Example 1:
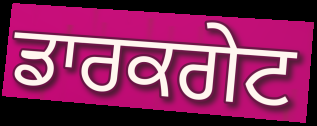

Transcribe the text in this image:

ਡਾਰਕਗੇਟ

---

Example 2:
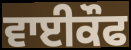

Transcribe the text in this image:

ਵਾਈਕੌਫ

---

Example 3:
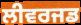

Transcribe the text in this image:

ਲੀਵਰਜਡ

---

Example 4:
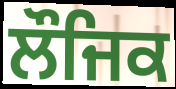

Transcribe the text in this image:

ਲੌਜਿਕ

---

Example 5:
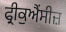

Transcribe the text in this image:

ਫ੍ਰੀਕੁਐਂਸੀਜ਼